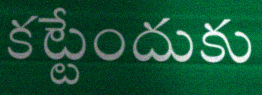
కట్టేందుకు